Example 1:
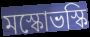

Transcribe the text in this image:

মস্কোভস্কি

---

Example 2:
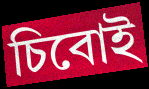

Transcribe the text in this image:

চিবোই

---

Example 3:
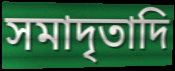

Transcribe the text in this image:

সমাদৃতাদি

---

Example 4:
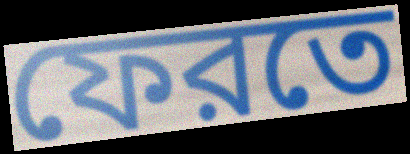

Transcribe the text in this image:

ফেরতে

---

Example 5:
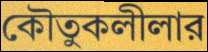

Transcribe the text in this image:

কৌতুকলীলার